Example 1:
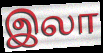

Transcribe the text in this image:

இலா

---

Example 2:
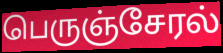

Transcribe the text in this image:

பெருஞ்சேரல்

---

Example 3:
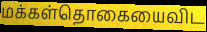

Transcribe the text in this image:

மக்கள்தொகையைவிட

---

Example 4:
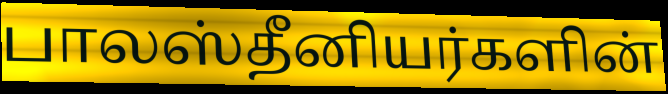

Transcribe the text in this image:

பாலஸ்தீனியர்களின்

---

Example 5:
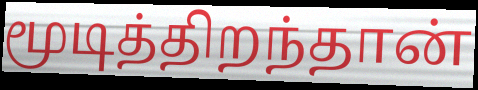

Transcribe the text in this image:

மூடித்திறந்தான்